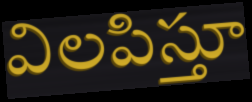
విలపిస్తూ